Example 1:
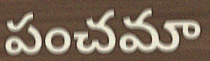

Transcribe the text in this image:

పంచమా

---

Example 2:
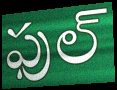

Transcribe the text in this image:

ఫుల్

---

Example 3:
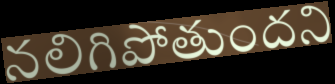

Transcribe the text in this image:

నలిగిపోతుందని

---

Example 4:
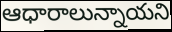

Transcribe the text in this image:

ఆధారాలున్నాయని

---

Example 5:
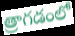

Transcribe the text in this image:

త్రాగడంలో